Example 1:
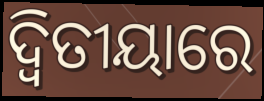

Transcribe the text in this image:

ଦ୍ୱିତୀୟାରେ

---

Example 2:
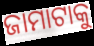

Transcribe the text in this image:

ଜାମାଟାକୁ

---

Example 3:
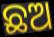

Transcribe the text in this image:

ଛଅ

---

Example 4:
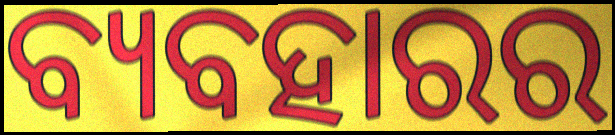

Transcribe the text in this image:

ବ୍ୟବହାରର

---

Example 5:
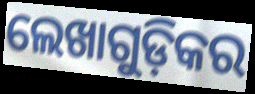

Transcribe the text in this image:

ଲେଖାଗୁଡ଼ିକର